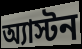
অ্যাস্টন